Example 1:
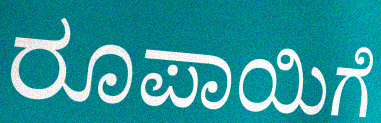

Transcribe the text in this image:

ರೂಪಾಯಿಗೆ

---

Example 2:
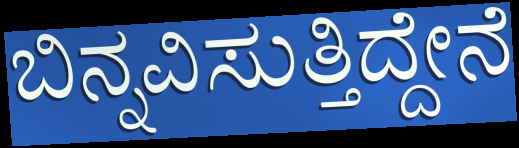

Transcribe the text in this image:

ಬಿನ್ನವಿಸುತ್ತಿದ್ದೇನೆ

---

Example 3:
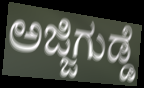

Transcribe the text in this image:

ಅಜ್ಜಿಗುಡ್ಡೆ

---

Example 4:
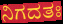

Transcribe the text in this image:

ನಿಗದತಃ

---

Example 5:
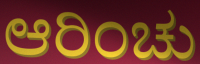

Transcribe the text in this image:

ಆರಿಂಚು